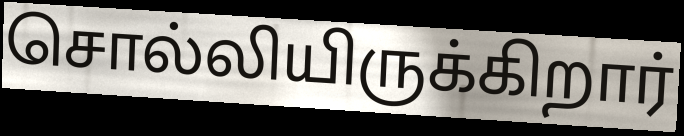
சொல்லியிருக்கிறார்